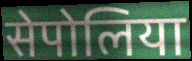
सेपोलिया